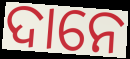
ଦାନେ